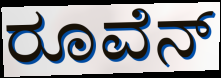
ರೂವೆನ್